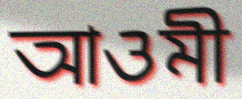
আওমী